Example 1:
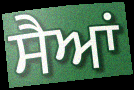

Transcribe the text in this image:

ਸੈਆਂ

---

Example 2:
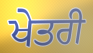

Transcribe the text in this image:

ਖੇਤਰੀ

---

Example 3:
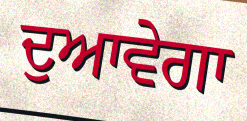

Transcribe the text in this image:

ਦੁਆਵੇਗਾ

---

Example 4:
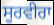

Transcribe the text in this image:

ਸੂਰਵੀਰਾ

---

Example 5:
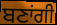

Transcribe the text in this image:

ਬਣਾਂਗੀ